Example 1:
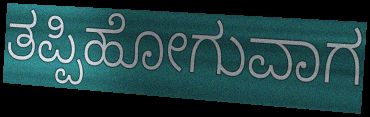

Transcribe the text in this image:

ತಪ್ಪಿಹೋಗುವಾಗ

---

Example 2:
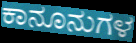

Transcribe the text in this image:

ಕಾನೂನುಗಳ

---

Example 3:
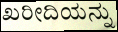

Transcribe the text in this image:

ಖರೀದಿಯನ್ನು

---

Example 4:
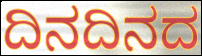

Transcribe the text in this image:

ದಿನದಿನದ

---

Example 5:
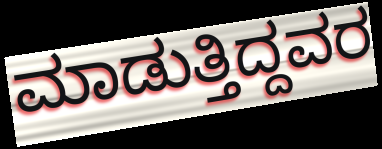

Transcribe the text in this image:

ಮಾಡುತ್ತಿದ್ದವರ